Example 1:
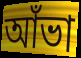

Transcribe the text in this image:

আঁভা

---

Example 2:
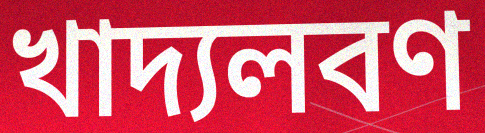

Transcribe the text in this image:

খাদ্যলবণ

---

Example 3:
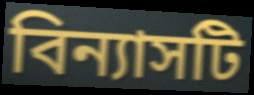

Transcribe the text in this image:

বিন্যাসটি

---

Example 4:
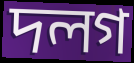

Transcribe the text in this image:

দলগ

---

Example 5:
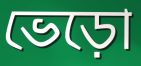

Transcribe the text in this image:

ভেড়ো